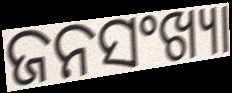
ଜନସଂଖ୍ଯା